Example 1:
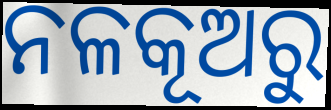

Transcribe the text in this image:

ନଳକୂଅରୁ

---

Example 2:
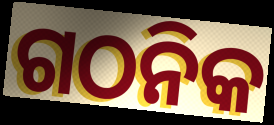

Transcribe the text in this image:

ଗଠନିକ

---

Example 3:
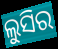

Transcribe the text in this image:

ଲୁସିର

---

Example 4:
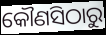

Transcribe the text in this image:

କୌଣସିଠାରୁ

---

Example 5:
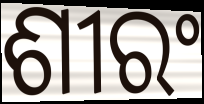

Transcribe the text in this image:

ଶୀରଂ